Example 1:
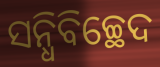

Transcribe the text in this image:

ସନ୍ଧିବିଚ୍ଛେଦ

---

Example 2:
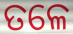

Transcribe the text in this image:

ତଳେ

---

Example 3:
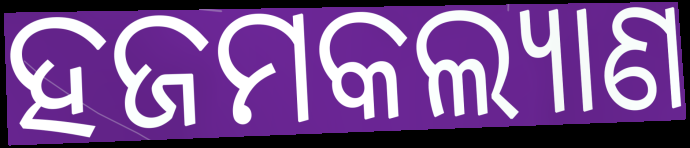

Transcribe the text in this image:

ହଜମକଲ୍ୟାଣ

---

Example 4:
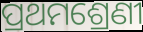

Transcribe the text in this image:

ପ୍ରଥମଶ୍ରେଣୀ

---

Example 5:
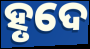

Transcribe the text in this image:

ହୃଦେ